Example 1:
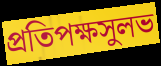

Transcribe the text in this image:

প্রতিপক্ষসুলভ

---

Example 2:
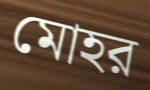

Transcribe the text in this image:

মোহর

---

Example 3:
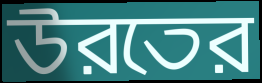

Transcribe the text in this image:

উরতের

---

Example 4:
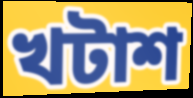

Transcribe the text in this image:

খটাশ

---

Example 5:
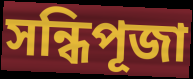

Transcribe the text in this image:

সন্ধিপূজা